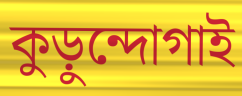
কুড়ুন্দোগাই